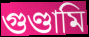
গুণ্ডামি